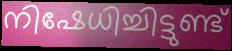
നിഷേധിച്ചിട്ടുണ്ട്